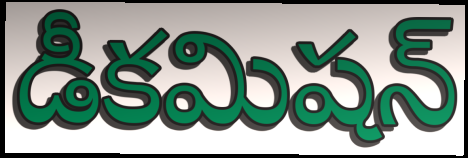
డీకమిషన్